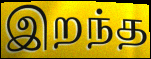
இறந்த